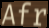
Afr